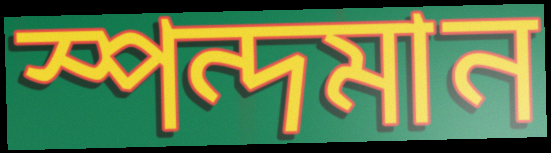
স্পন্দমান